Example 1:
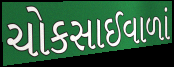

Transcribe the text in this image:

ચોકસાઈવાળાં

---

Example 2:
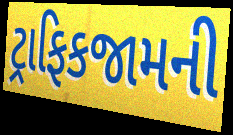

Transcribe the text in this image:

ટ્રાફિકજામની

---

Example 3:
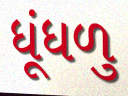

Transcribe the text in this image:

ધૂંધળુ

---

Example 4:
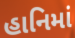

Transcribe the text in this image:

હાનિમાં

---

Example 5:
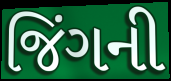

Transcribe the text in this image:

જિંગની